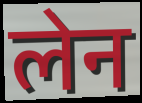
लेन